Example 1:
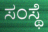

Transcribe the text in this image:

ಸಂಸ್ಥೆ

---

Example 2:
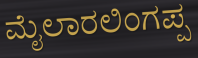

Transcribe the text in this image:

ಮೈಲಾರಲಿಂಗಪ್ಪ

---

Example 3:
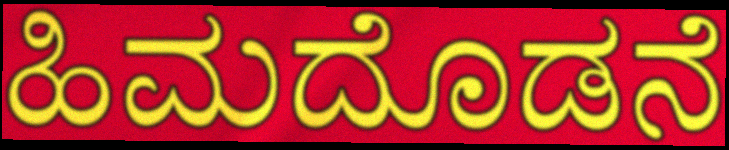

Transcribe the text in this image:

ಹಿಮದೊಡನೆ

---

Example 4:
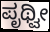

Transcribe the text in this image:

ಪೃಥ್ವೀ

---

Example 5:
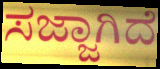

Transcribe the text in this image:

ಸಜ್ಜಾಗಿದೆ